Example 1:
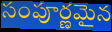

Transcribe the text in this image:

సంపూర్ణమైన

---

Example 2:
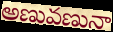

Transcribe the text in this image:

అణువణునా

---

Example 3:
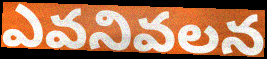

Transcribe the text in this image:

ఎవనివలన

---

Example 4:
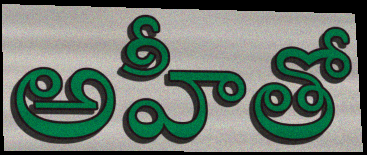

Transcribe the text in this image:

అహీతో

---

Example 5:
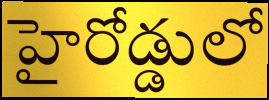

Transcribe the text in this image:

హైరోడ్డులో